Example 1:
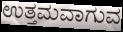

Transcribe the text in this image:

ಉತ್ತಮವಾಗುವ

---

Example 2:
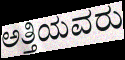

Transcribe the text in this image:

ಅತ್ತಿಯವರು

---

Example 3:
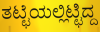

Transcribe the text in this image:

ತಟ್ಟೆಯಲ್ಲಿಟ್ಟಿದ್ದ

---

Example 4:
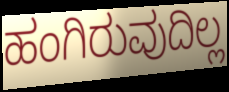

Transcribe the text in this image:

ಹಂಗಿರುವುದಿಲ್ಲ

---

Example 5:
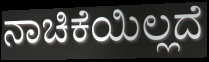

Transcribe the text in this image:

ನಾಚಿಕೆಯಿಲ್ಲದೆ